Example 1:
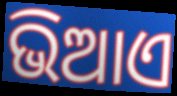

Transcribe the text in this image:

ଭିଆଏ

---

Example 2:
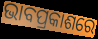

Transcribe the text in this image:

ଭାବପ୍ରକାଶରେ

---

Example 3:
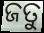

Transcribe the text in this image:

ଜତୁ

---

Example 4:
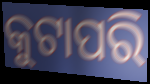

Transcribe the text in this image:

କୁଟାପରି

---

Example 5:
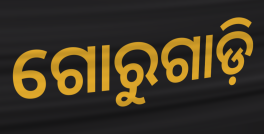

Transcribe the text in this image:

ଗୋରୁଗାଡ଼ି